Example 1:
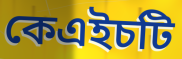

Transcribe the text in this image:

কেএইচটি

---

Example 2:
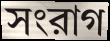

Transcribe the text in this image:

সংরাগ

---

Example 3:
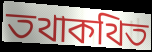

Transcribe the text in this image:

তথাকথিত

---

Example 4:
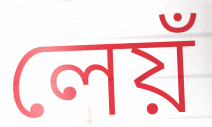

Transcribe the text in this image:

লেয়ঁ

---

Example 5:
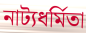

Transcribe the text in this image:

নাট্যধর্মিতা